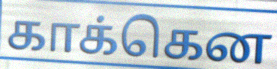
காக்கென